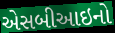
એસબીઆઇનો